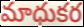
మాధుకర